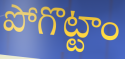
పోగొట్టాం